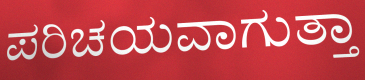
ಪರಿಚಯವಾಗುತ್ತಾ